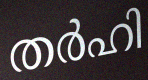
തർഹി